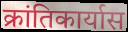
क्रांतिकार्यास